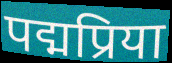
पद्मप्रिया